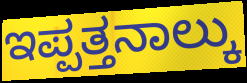
ಇಪ್ಪತ್ತನಾಲ್ಕು